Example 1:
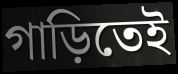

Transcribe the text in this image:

গাড়িতেই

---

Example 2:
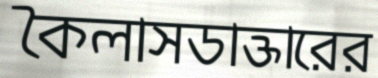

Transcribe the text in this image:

কৈলাসডাক্তারের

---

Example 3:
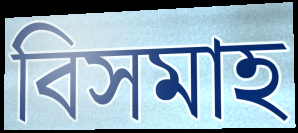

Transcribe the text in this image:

বিসমাহ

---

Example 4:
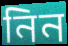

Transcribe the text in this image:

নিন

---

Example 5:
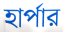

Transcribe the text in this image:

হার্পার